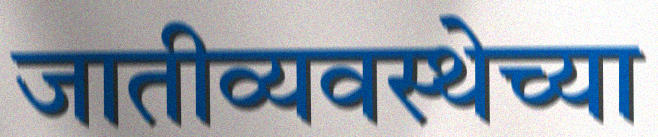
जातीव्यवस्थेच्या